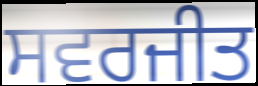
ਸਵਰਜੀਤ